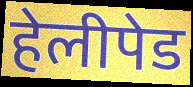
हेलीपेड